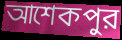
আশেকপুর